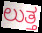
ಲುತ್ತ